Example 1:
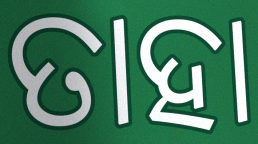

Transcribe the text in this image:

ତାହା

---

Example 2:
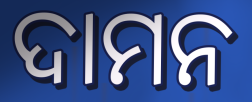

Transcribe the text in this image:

ଦାମନ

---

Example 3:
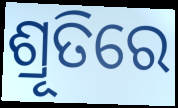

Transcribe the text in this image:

ଶ୍ରୂତିରେ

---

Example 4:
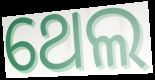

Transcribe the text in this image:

ଥେଲ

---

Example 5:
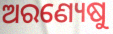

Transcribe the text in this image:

ଅରଣ୍ୟେଷୁ